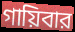
গায়িবার